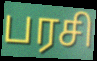
பரசி